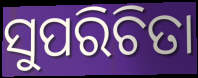
ସୁପରିଚିତା